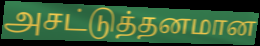
அசட்டுத்தனமான